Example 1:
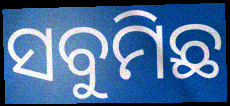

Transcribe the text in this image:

ସବୁମିଛ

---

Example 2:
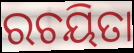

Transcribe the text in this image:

ରଚୟିତା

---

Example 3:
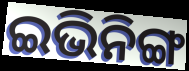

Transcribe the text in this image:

ଇଭିନିଙ୍ଗ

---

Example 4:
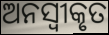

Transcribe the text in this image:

ଅନସ୍ବୀକୃତ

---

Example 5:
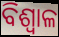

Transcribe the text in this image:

ବିଶ୍ୱାଳ